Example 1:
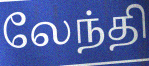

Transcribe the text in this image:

லேந்தி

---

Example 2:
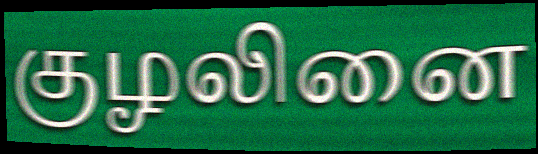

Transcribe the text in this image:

குழலினை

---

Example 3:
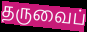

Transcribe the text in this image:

தருவைப்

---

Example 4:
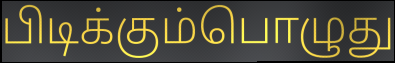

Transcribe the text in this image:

பிடிக்கும்பொழுது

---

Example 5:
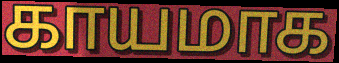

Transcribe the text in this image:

காயமாக